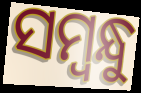
ସମ୍ବନ୍ଧୁ